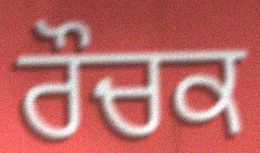
ਰੌਚਕ